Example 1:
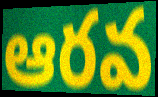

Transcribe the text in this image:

ఆరవ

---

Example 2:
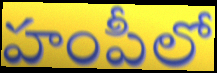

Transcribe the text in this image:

హంపీలో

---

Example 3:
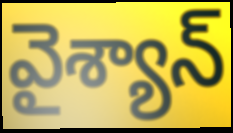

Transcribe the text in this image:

వైశ్యాన్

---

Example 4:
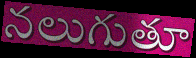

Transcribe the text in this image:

నలుగుతూ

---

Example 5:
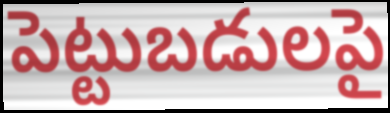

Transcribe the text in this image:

పెట్టుబడులపై